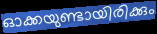
ഓക്കയുണ്ടായിരിക്കും